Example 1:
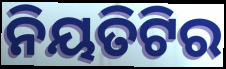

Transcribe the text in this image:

ନିୟତିଟିର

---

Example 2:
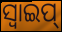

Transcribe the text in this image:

ସ୍ୱାଇପ୍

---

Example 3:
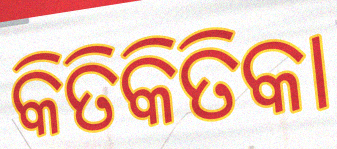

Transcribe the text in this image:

କିତିକିତିକା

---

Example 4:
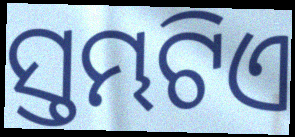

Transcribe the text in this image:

ସ୍ତମ୍ଭଟିଏ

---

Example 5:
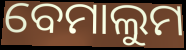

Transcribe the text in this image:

ବେମାଲୁମ